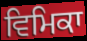
ਵਿਮਿਕਾ